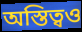
অস্তিত্বও